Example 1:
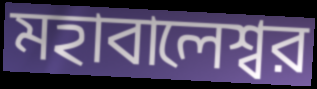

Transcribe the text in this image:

মহাবালেশ্বর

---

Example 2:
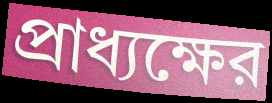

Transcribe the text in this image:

প্রাধ্যক্ষের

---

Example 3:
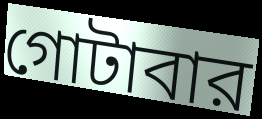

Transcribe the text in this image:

গোটাবার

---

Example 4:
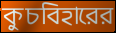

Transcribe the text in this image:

কুচবিহারের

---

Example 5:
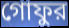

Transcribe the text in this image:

গোফুর